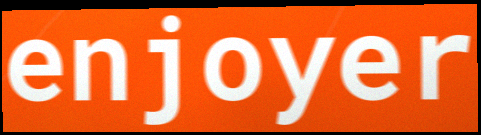
enjoyer